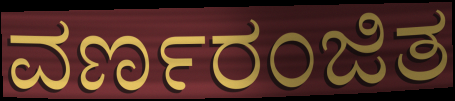
ವರ್ಣರಂಜಿತ